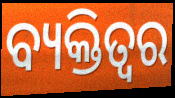
ବ୍ୟକ୍ତିତ୍ବର